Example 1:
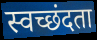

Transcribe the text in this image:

स्वच्छंदता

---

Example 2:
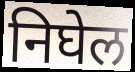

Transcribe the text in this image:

निघेल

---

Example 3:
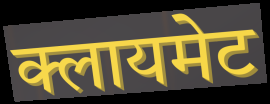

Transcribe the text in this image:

क्लायमेट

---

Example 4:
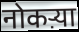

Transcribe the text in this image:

नोकऱ्‍या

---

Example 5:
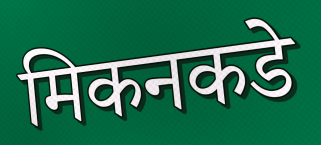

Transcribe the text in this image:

मिकनकडे